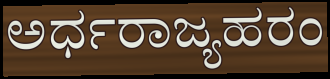
ಅರ್ಧರಾಜ್ಯಹರಂ